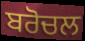
ਬਰੋਚਲ